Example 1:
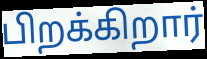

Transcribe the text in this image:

பிறக்கிறார்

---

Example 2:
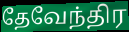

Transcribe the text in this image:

தேவேந்திர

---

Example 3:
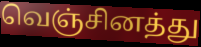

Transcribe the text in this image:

வெஞ்சினத்து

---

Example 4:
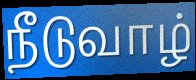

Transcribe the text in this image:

நீடுவாழ்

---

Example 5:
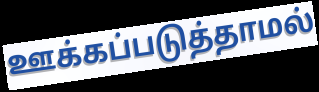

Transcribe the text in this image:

ஊக்கப்படுத்தாமல்